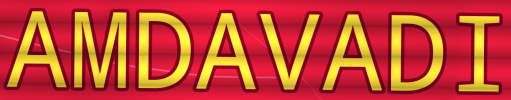
AMDAVADI